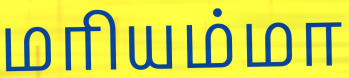
மரியம்மா